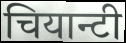
चियान्टी